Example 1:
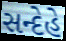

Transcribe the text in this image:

સન્દેહે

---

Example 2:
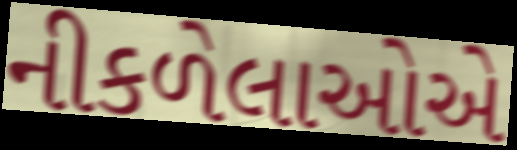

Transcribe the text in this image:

નીકળેલાઓએ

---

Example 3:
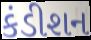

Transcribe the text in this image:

કંડીશન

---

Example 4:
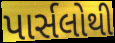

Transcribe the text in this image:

પાર્સલોથી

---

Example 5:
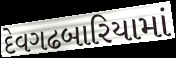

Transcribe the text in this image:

દેવગઢબારિયામાં